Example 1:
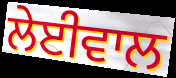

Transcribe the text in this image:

ਲੇਈਵਾਲ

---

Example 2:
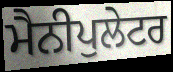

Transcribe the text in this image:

ਮੈਨੀਪੁਲੇਟਰ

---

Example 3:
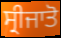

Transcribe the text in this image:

ਸ੍ਰੀਜਾਤੋ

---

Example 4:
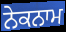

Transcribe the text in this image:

ਨੇਕਨਾਮ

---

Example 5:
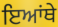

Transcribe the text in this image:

ਇਆਂਥੇ